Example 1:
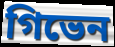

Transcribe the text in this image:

গিভেন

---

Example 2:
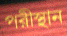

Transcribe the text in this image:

পরীস্থান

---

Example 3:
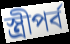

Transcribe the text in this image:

স্ত্রীপর্ব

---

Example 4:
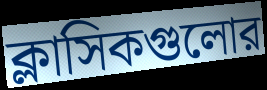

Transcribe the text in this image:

ক্লাসিকগুলোর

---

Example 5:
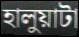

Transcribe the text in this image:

হালুয়াটা